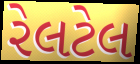
રેલટેલ